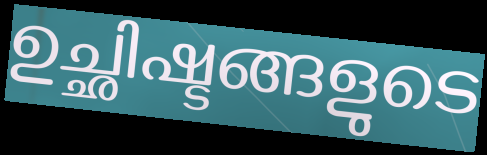
ഉച്ഛിഷ്ടങ്ങളുടെ